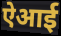
ऐआई